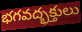
భగవద్భక్తులు